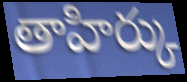
తాహిర్కు